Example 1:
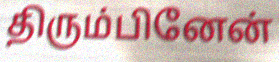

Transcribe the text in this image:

திரும்பினேன்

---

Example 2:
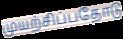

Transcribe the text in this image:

முயற்சிப்பதோடு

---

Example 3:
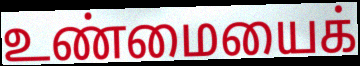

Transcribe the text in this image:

உண்மையைக்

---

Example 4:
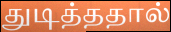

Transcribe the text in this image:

துடித்ததால்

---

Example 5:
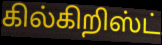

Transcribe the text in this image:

கில்கிறிஸ்ட்